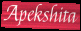
Apekshita